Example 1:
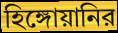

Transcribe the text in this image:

হিঙ্গোয়ানির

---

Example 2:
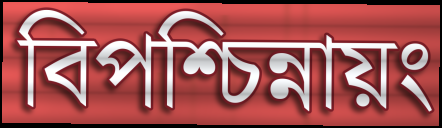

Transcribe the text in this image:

বিপশ্চিন্নায়ং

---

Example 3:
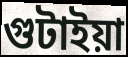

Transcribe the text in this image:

গুটাইয়া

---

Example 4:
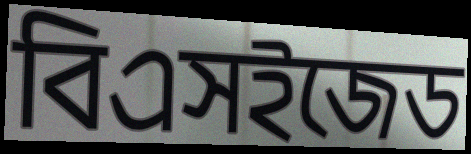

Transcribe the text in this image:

বিএসইজেড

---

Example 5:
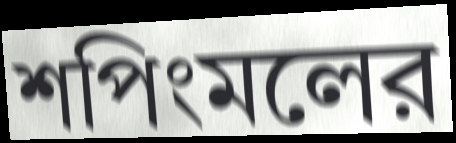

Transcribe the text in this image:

শপিংমলের